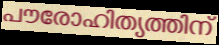
പൗരോഹിത്യത്തിന്